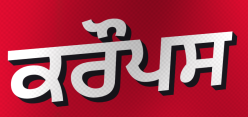
ਕਰੌਪਸ